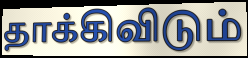
தாக்கிவிடும்